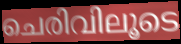
ചെരിവിലൂടെ